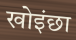
खोइंछा